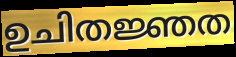
ഉചിതജ്ഞത